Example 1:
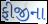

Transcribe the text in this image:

ફીજીના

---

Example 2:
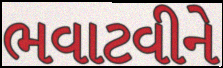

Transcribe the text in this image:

ભવાટવીને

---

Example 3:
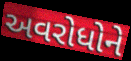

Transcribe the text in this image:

અવરોધોને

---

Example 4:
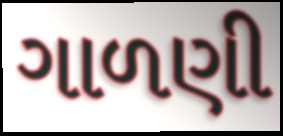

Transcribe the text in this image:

ગાળણી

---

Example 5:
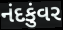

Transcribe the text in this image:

નંદકુંવર